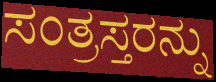
ಸಂತ್ರಸ್ತರನ್ನು